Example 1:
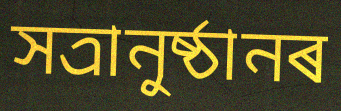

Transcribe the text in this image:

সত্ৰানুষ্ঠানৰ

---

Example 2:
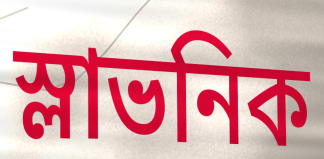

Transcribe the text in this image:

স্লাভনিক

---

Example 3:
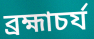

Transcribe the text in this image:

ব্ৰহ্মাচৰ্য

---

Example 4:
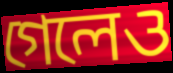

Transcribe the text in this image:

গেলেও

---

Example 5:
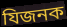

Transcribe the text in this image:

যিজনক